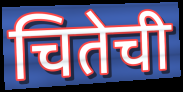
चितेची